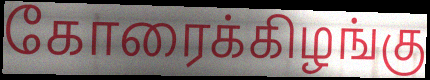
கோரைக்கிழங்கு